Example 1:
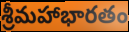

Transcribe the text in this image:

శ్రీమహాభారతం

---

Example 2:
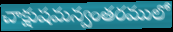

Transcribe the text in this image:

చాక్షుషమన్వంతరములో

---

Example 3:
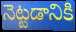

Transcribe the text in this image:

నెట్టడానికి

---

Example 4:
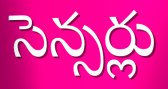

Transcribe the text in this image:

సెన్సర్లు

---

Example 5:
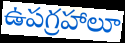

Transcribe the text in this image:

ఉపగ్రహాలూ